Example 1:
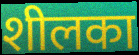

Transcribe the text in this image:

शीलका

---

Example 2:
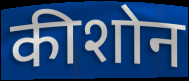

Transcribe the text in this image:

कीशोन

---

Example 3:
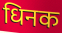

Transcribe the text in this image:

धिनक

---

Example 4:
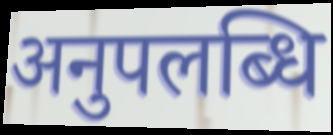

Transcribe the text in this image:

अनुपलब्धि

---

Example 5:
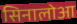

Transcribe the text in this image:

सिनालोआ